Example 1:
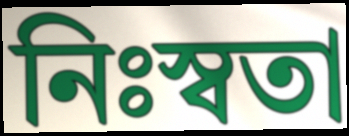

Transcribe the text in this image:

নিঃস্বতা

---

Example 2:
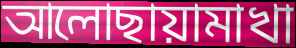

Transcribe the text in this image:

আলোছায়ামাখা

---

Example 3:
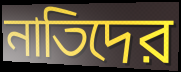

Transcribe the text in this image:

নাতিদের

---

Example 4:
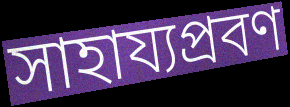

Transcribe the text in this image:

সাহায্যপ্রবণ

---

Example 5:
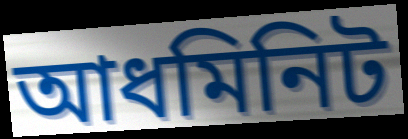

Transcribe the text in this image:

আধমিনিট